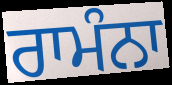
ਰਾਮੰਨਾ